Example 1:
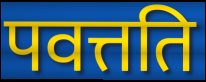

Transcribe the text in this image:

पवत्तति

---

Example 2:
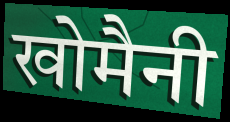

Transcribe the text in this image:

खोमैनी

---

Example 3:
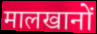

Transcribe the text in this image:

मालखानों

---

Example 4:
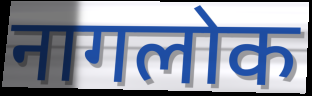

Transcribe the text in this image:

नागलोक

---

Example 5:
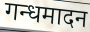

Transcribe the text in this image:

गन्धमादन